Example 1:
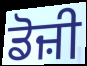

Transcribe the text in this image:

ਡੋਜ਼ੀ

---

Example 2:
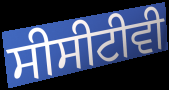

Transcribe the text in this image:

ਸੀਸੀਟੀਵੀ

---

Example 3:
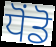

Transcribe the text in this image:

ਧੋਂਡੋ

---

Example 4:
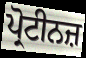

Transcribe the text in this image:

ਪ੍ਰੋਟੀਨਜ਼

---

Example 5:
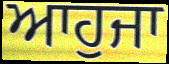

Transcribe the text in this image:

ਆਹੁਜਾ